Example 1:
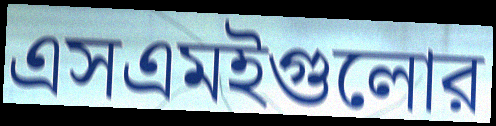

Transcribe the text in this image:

এসএমইগুলোর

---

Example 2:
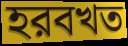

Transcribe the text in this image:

হরবখত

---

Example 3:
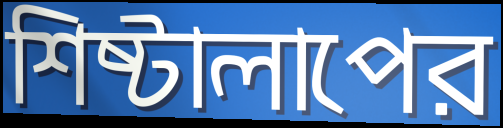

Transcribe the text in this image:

শিষ্টালাপের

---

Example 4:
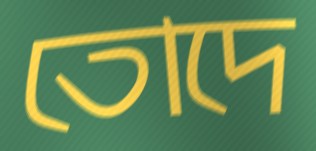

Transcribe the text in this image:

তোদে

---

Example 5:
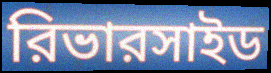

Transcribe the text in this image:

রিভারসাইড